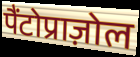
पैंटोप्राज़ोल